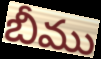
బీము